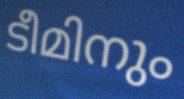
ടീമിനും